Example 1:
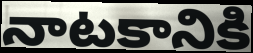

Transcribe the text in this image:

నాటకానికి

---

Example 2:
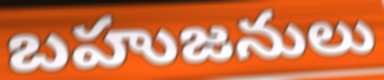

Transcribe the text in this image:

బహుజనులు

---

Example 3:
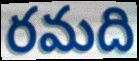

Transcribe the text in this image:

రమది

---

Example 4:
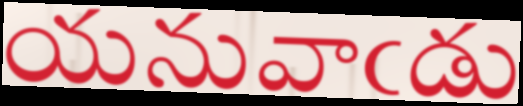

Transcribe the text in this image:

యనువాఁడు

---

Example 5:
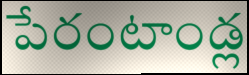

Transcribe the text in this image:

పేరంటాండ్ల